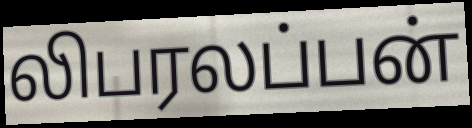
லிபரலப்பன்